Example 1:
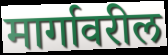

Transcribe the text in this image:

मार्गावरील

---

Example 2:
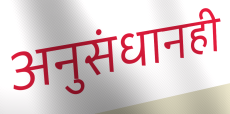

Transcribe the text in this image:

अनुसंधानही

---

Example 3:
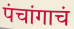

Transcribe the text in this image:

पंचांगाचं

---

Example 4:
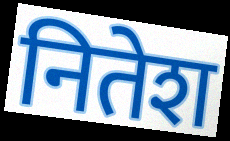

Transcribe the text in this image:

नितेश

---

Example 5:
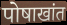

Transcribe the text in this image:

पोषाखांत